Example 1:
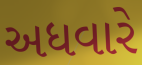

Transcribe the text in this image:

અધવારે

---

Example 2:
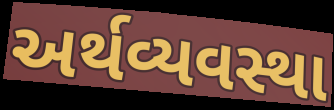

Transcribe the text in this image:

અર્થવ્યવસ્થા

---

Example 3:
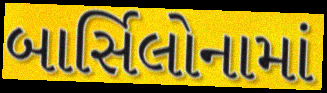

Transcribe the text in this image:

બાર્સિલોનામાં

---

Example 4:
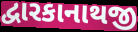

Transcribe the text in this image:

દ્વારકાનાથજી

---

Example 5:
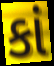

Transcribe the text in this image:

કાં